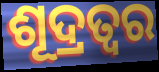
ଶୂଦ୍ରତ୍ଵର